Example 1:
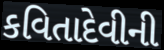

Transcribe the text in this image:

કવિતાદેવીની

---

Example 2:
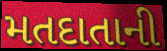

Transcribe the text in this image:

મતદાતાની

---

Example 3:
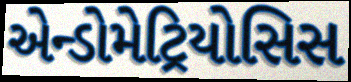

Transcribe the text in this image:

એન્ડોમેટ્રિયોસિસ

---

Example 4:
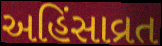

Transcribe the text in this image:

અહિંસાવ્રત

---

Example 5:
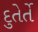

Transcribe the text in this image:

દુતેર્તે